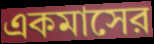
একমাসের